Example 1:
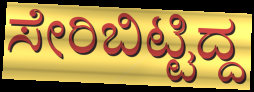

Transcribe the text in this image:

ಸೇರಿಬಿಟ್ಟಿದ್ದ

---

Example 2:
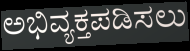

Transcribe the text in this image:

ಅಭಿವ್ಯಕ್ತಪಡಿಸಲು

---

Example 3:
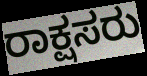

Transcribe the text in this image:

ರಾಕ್ಷಸರು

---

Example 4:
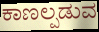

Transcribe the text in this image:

ಕಾಣಲ್ಪಡುವ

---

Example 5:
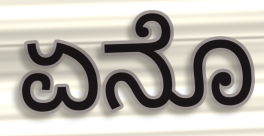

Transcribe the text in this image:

ಏನೊ